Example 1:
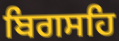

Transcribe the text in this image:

ਬਿਗਸਹਿ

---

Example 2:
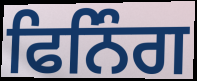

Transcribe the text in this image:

ਫਿਨਿੰਗ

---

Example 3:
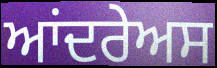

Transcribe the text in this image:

ਆਂਦਰੇਅਸ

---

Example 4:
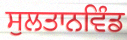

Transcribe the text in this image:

ਸੁਲਤਾਨਵਿੰਡ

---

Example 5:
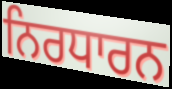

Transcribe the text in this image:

ਨਿਰਧਾਰਨ